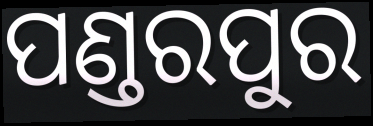
ପଣ୍ଡରପୁର